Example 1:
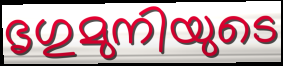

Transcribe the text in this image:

ഭൃഗുമുനിയുടെ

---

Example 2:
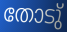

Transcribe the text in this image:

തോടു്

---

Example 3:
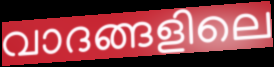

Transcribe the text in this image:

വാദങ്ങളിലെ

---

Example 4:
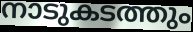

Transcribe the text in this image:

നാടുകടത്തും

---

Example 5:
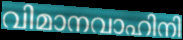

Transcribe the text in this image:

വിമാനവാഹിനി